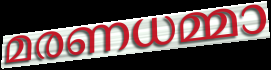
മരണധമ്മാ